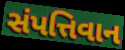
સંપત્તિવાન